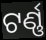
ଟର୍ଣ୍ଣ